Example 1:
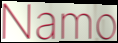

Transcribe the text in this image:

Namo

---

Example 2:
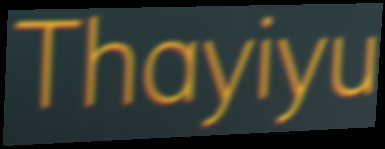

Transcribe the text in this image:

Thayiyu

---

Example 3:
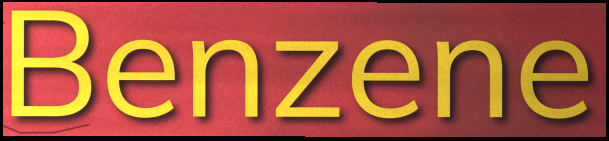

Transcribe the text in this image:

Benzene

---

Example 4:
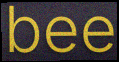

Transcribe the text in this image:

bee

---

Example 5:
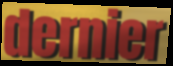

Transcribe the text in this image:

dernier